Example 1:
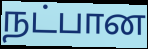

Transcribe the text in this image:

நட்பான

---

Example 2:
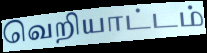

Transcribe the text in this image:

வெறியாட்டம்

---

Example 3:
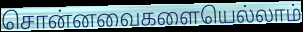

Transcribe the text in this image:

சொன்னவைகளையெல்லாம்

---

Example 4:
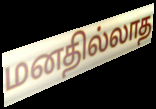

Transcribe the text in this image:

மனதில்லாத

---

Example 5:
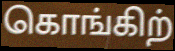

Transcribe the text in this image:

கொங்கிற்